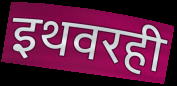
इथवरही